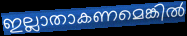
ഇല്ലാതാകണമെങ്കിൽ